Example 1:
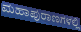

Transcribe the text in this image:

ಮಹಾಪುರಾಣಗಳಲ್ಲಿ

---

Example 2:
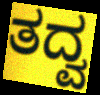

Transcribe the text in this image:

ತದ್ವ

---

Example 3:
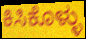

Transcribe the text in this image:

ಕಿಸಿಕೊಳ್ಳು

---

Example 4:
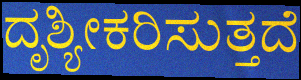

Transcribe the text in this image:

ದೃಶ್ಯೀಕರಿಸುತ್ತದೆ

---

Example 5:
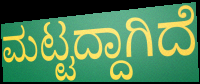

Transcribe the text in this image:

ಮಟ್ಟದ್ದಾಗಿದೆ